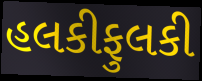
હલકીફુલકી